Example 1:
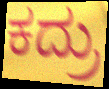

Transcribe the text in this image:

ಕದ್ರು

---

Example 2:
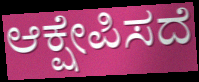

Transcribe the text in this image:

ಆಕ್ಷೇಪಿಸದೆ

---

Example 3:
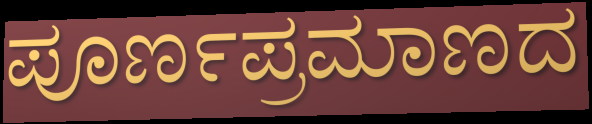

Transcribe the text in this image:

ಪೂರ್ಣಪ್ರಮಾಣದ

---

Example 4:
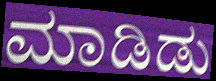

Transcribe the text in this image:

ಮಾಡಿಡು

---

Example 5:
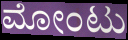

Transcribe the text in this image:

ಮೋಂಟು